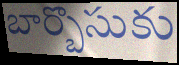
బార్బొసుకు